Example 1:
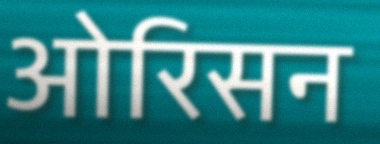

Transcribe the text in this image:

ओरिसन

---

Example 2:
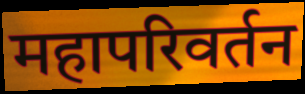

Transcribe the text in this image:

महापरिवर्तन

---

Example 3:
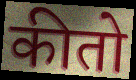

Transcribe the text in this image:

कीतो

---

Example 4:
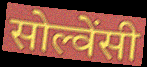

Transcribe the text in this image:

सोल्वेंसी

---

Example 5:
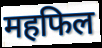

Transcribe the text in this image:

महफिल